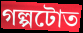
গল্পটোত